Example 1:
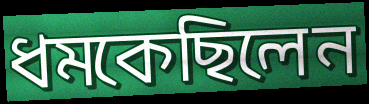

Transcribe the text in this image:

ধমকেছিলেন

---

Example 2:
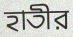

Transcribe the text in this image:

হাতীর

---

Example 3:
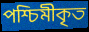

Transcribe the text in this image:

পশ্চিমীকৃত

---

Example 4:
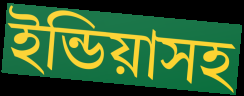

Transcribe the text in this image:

ইন্ডিয়াসহ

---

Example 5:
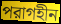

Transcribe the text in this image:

পরাগহীন